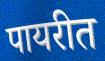
पायरीत